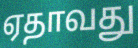
ஏதாவது